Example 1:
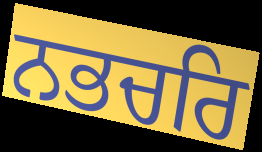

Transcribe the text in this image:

ਨਭਚਰਿ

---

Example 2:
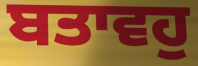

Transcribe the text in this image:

ਬਤਾਵਹੁ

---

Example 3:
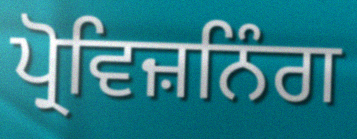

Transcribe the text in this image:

ਪ੍ਰੋਵਿਜ਼ਨਿੰਗ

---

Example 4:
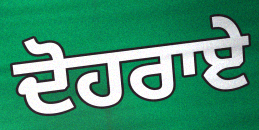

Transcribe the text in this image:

ਦੋਹਰਾਏ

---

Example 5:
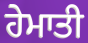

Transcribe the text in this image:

ਹੇਮਾਤੀ